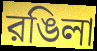
রঙিলা